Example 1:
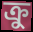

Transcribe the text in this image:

ক্রু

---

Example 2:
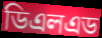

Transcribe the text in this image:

ডিএলএড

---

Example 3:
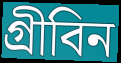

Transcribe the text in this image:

গ্রীবিন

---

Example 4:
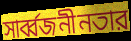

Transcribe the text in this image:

সার্ব্বজনীনতার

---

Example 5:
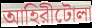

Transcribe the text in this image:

আহিরীটোলা